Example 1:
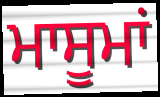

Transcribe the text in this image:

ਮਾਸੂਮਾਂ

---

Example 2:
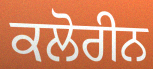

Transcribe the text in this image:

ਕਲੋਰੀਨ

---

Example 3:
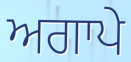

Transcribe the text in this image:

ਅਗਾਪੇ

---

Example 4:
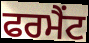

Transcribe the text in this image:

ਫਰਮੈਂਟ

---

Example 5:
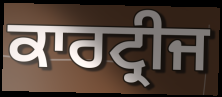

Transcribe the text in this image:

ਕਾਰਟ੍ਰੀਜ